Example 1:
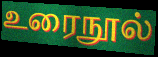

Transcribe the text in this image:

உரைநூல்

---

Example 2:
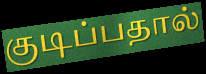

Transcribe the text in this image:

குடிப்பதால்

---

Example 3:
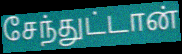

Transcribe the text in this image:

சேந்துட்டான்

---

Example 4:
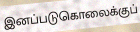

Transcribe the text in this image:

இனப்படுகொலைக்குப்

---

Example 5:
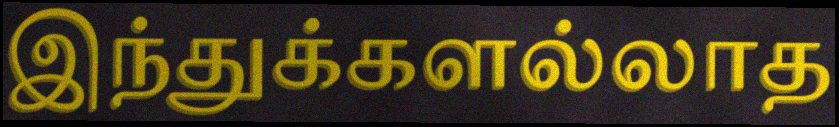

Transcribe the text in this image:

இந்துக்களல்லாத